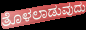
ತೊಳಲಾಡುವುದು